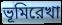
ভূমিরেখা